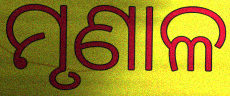
ମୃଣାଳ